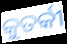
କୁତର୍କୀ